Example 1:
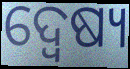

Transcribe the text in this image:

ଦ୍ୱେଷ୍ୟ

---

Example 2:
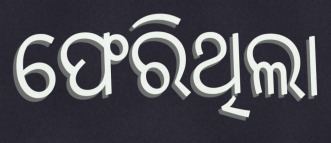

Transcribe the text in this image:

ଫେରିଥିଲା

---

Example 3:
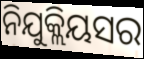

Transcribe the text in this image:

ନିଯୁକ୍ଲିୟସର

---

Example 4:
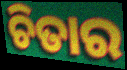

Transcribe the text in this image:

ଚିତାର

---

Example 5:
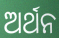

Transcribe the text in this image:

ଅର୍ଥନ